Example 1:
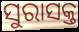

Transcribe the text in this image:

ସୁରାସକ୍ତ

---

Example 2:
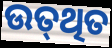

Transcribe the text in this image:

ଉତ୍‍ଥିତ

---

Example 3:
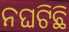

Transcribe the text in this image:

ନଘଟିଛି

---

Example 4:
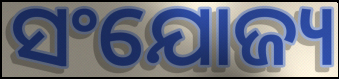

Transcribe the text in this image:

ସଂଯୋଜ୍ୟ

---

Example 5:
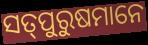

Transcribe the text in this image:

ସତ୍‌ପୁରୁଷମାନେ